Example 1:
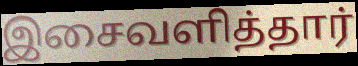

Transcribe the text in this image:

இசைவளித்தார்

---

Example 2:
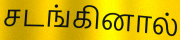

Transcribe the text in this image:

சடங்கினால்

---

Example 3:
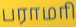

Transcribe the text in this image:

பராமரி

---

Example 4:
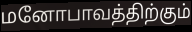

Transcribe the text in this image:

மனோபாவத்திற்கும்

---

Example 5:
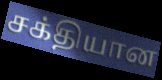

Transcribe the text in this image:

சக்தியான